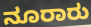
ನೂರಾರು